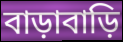
বাড়াবাড়ি